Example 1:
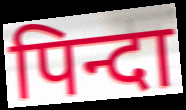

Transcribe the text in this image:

पिन्दा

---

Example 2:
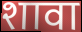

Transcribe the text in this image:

शावा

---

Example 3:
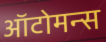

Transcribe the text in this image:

ऑटोमन्स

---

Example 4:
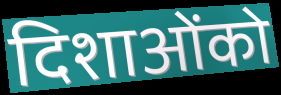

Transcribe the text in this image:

दिशाओंको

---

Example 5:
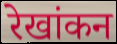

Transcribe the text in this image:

रेखांकन